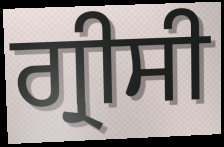
ਗ੍ਰੀਸੀ